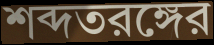
শব্দতরঙ্গের